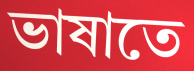
ভাষাতে